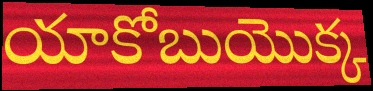
యాకోబుయొక్క